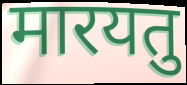
मारयतु